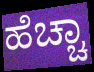
ಹೆಚ್ಚಾ